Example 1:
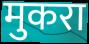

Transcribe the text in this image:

मुकरा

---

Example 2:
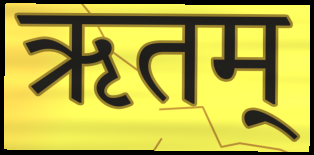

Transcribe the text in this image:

ऋतम्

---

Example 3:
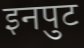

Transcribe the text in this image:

इनपुट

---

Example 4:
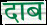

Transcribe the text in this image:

दाब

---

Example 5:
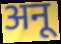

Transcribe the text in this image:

अनू